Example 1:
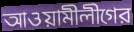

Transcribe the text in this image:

আওয়ামীলীগের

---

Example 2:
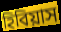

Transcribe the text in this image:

হিবিয়াস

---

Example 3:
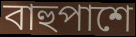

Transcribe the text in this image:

বাহুপাশে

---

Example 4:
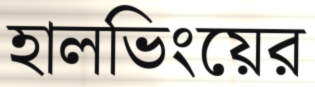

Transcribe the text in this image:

হালভিংয়ের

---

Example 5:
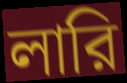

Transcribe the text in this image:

লারি